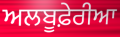
ਅਲਬੂਫ਼ੇਰੀਆ